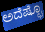
ಅದೆಷ್ಟೊ